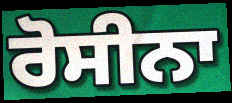
ਰੋਸੀਨਾ